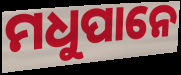
ମଧୁପାନେ